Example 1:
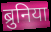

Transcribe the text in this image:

ब्रुनिया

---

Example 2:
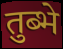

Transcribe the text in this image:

तुब्भे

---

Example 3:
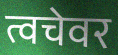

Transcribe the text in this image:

त्वचेवर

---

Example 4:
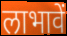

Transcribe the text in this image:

लाभावें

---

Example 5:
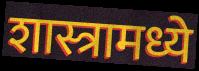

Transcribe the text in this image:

शास्त्रामध्ये